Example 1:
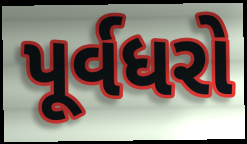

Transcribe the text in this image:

પૂર્વધરો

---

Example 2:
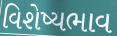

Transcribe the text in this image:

વિશેષ્યભાવ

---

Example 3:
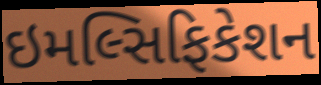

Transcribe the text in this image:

ઇમલ્સિફિકેશન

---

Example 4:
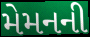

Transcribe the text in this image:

મેમનની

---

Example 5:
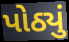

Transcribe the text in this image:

પોઠ્યું